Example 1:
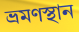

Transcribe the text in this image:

ভ্রমণস্থান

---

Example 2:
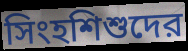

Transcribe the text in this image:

সিংহশিশুদের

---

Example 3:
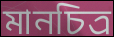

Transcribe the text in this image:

মানচিত্র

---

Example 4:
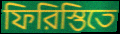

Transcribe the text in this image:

ফিরিস্তিতে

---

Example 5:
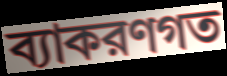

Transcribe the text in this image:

ব্যাকরণগত